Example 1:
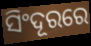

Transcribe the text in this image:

ସିଂଦୂରରେ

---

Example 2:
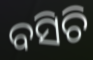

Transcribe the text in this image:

ବସିଚି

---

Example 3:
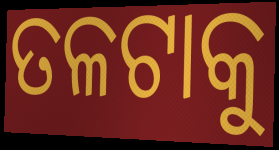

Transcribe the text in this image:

ତଳଟାକୁ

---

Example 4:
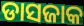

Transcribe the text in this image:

ଡାସଜାକ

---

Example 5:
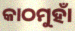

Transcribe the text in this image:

କାଠମୁହାଁ